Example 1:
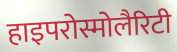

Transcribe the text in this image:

हाइपरोस्मोलैरिटी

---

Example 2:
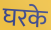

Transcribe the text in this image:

घरके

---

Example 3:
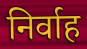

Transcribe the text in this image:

निर्वाह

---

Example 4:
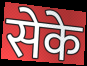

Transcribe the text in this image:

सेके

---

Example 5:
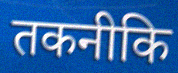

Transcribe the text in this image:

तकनीकि